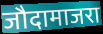
जौदामाजरा